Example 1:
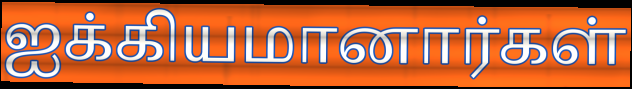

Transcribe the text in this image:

ஐக்கியமானார்கள்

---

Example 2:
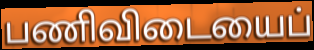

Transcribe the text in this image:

பணிவிடையைப்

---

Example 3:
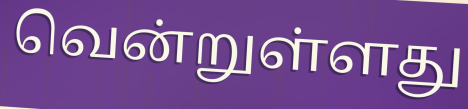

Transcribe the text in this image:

வென்றுள்ளது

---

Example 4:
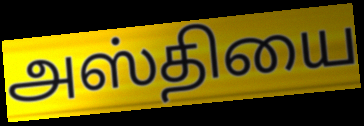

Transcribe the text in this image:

அஸ்தியை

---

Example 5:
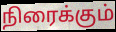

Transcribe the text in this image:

நிரைக்கும்